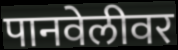
पानवेलीवर